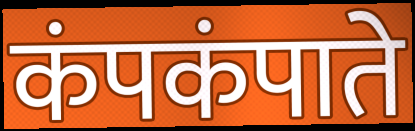
कंपकंपाते